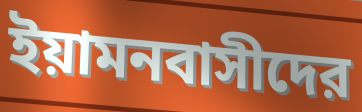
ইয়ামনবাসীদের